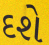
દશે